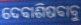
ଦେବାଶିଷବାବୁ